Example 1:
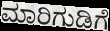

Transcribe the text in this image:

ಮಾರಿಗುಡಿಗೆ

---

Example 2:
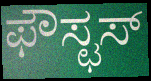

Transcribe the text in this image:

ಫೌಸ್ಟಸ್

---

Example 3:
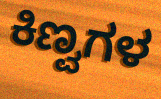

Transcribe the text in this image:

ಕಿಣ್ವಗಳ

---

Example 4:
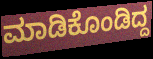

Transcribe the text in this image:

ಮಾಡಿಕೊಂಡಿದ್ದ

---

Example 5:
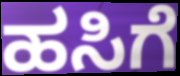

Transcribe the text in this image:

ಹಸಿಗೆ